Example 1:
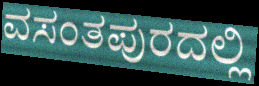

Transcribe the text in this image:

ವಸಂತಪುರದಲ್ಲಿ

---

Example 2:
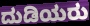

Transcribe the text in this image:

ದುಡಿಯರು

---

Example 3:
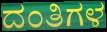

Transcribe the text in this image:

ದಂತಿಗಳ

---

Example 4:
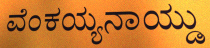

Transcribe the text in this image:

ವೆಂಕಯ್ಯನಾಯ್ಡು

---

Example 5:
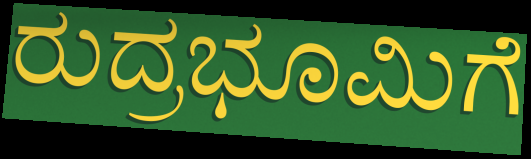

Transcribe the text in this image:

ರುದ್ರಭೂಮಿಗೆ